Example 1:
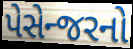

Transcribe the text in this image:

પેસેન્જરનો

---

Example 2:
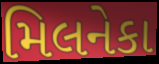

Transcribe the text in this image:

મિલનેકા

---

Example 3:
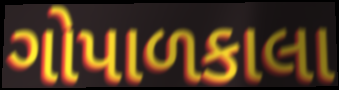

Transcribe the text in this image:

ગોપાળકાલા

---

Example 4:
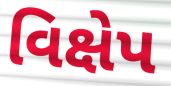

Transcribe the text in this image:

વિક્ષેપ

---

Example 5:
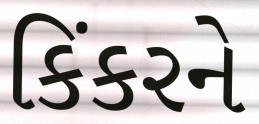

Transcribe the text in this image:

કિંકરને